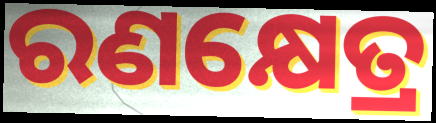
ରଣକ୍ଷେତ୍ର